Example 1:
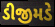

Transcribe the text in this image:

ડીજીમડે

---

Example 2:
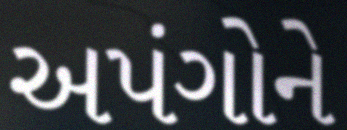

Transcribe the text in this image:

અપંગોને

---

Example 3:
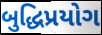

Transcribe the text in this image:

બુદ્ધિપ્રયોગ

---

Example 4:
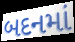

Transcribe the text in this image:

બદનમાં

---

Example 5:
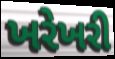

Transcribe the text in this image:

ખરેખરી